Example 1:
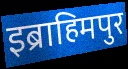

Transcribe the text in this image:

इब्राहिमपुर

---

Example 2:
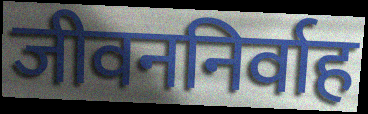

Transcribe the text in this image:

जीवननिर्वाह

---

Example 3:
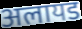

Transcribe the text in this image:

अलायड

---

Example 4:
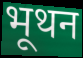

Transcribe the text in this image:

भूथन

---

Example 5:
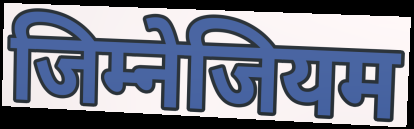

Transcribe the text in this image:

जिम्नेजियम